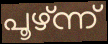
പൂഴ്ന്ന്